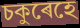
চকুৰেহে